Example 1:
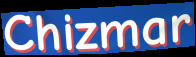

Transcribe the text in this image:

Chizmar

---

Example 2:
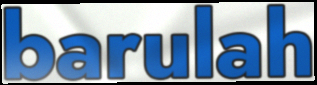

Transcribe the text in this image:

barulah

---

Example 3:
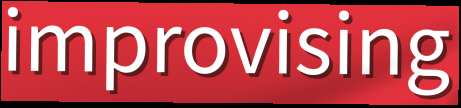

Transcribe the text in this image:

improvising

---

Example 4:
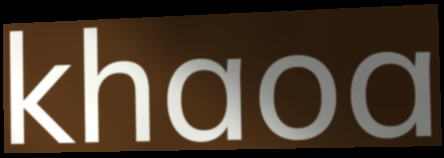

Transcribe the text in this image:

khaoa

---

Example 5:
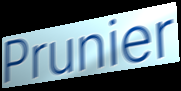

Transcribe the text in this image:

Prunier